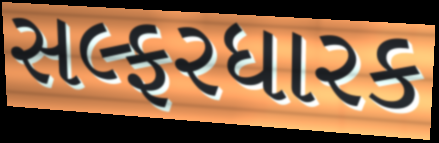
સલ્ફરધારક